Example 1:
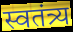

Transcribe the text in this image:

स्वतंत्र्य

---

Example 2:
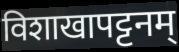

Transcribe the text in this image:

विशाखापट्टनम्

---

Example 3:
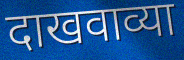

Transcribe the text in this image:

दाखवाव्या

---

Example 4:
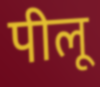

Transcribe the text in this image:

पीलू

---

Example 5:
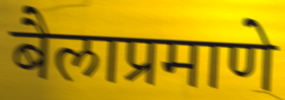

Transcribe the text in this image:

बैलाप्रमाणे